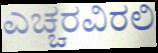
ಎಚ್ಚರವಿರಲಿ